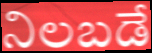
నిలబడే